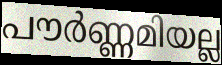
പൗർണ്ണമിയല്ല